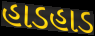
હાડહાડ